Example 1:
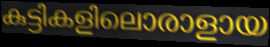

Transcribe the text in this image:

കുട്ടികളിലൊരാളായ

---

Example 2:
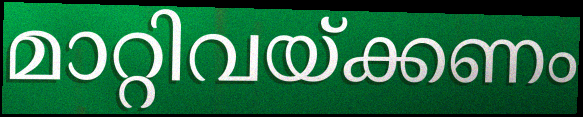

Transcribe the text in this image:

മാറ്റിവയ്ക്കണം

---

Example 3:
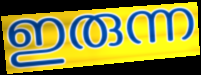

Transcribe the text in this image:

ഇരുന്ന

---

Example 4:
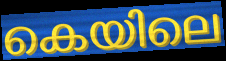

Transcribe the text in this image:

കെയിലെ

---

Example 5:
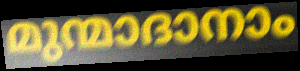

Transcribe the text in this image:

മുന്മാദാനാം